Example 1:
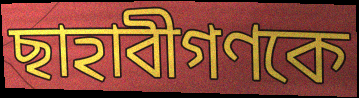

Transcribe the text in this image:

ছাহাবীগণকে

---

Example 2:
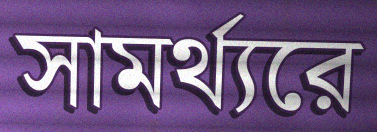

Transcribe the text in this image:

সামর্থ্যরে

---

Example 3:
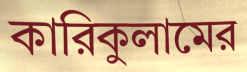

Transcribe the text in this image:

কারিকুলামের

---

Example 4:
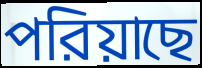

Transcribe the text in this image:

পরিয়াছে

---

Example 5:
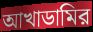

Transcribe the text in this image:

আখাডামির